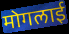
मोगलाई